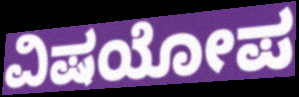
ವಿಷಯೋಪ